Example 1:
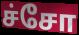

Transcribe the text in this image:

ச்சோ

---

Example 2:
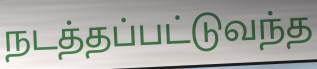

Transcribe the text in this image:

நடத்தப்பட்டுவந்த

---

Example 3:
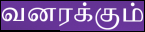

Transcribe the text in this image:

வனரக்கும்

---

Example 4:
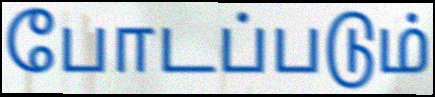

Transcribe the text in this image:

போடப்படும்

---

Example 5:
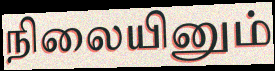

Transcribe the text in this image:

நிலையினும்